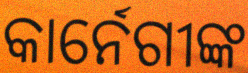
କାର୍ନେଗୀଙ୍କ